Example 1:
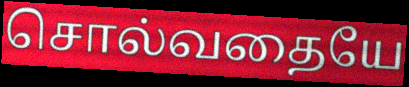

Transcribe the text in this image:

சொல்வதையே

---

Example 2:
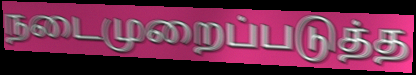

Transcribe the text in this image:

நடைமுறைப்படுத்த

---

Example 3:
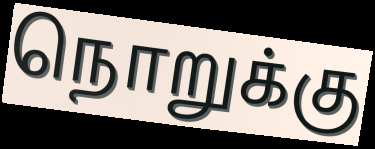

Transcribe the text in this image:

நொறுக்கு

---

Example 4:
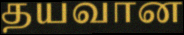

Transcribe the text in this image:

தயவான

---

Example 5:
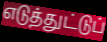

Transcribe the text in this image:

எடுத்துட்டுப்